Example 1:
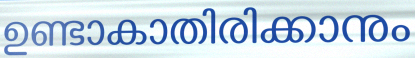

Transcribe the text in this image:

ഉണ്ടാകാതിരിക്കാനും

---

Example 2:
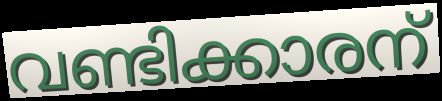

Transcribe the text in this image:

വണ്ടിക്കാരന്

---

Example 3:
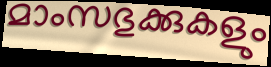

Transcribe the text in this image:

മാംസഭുക്കുകളും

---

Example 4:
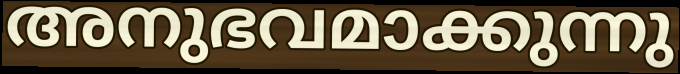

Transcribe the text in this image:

അനുഭവമാക്കുന്നു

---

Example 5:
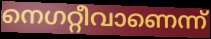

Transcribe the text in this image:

നെഗറ്റീവാണെന്ന്